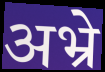
अभ्रे